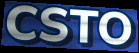
CSTO